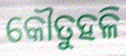
କୌତୁହଳି